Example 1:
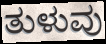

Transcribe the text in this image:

ತುಳುವು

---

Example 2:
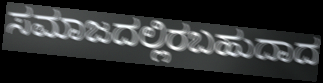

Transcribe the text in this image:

ಸಮಾಜದಲ್ಲಿರಬಹುದಾದ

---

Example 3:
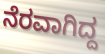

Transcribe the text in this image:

ನೆರವಾಗಿದ್ದ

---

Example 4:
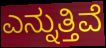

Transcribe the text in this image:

ಎನ್ನುತ್ತಿವೆ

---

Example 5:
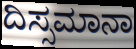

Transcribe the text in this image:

ದಿಸ್ಸಮಾನಾ